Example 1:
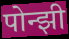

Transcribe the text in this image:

पोन्झी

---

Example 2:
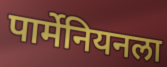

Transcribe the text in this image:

पार्मेनियनला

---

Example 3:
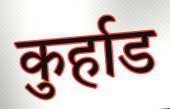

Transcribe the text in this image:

कुर्हाड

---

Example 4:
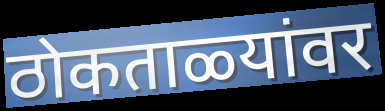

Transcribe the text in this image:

ठोकताळ्यांवर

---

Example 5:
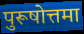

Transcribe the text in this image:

पुरूषोत्तमा